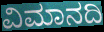
ವಿಮಾನದಿ